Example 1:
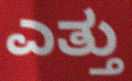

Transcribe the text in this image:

ಎತ್ತು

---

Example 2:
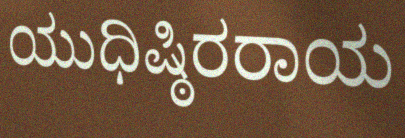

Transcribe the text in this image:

ಯುಧಿಷ್ಠಿರರಾಯ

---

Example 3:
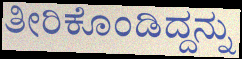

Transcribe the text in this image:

ತೀರಿಕೊಂಡಿದ್ದನ್ನು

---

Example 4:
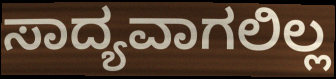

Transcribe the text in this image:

ಸಾದ್ಯವಾಗಲಿಲ್ಲ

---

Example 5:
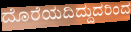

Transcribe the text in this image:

ದೊರೆಯದಿದ್ದುದರಿಂದ